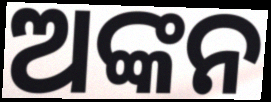
ଅଙ୍କନ